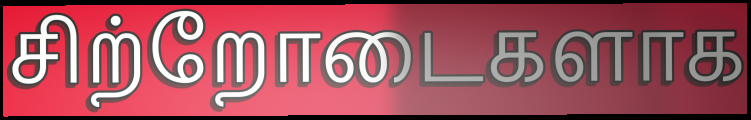
சிற்றோடைகளாக